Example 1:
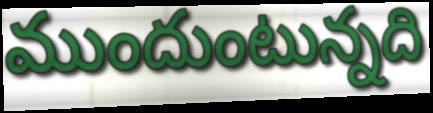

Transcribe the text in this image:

ముందుంటున్నది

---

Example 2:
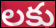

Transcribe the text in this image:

లకు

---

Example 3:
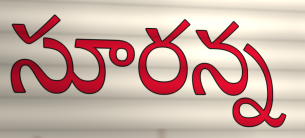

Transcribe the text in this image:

సూరన్న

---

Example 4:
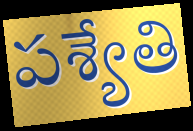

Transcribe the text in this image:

పశ్యేతి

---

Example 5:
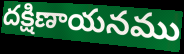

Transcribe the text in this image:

దక్షిణాయనము